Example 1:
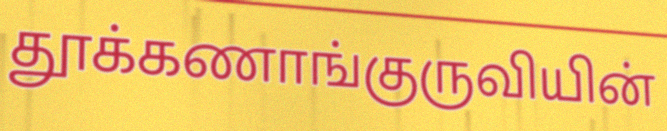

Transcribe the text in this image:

தூக்கணாங்குருவியின்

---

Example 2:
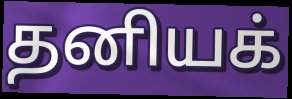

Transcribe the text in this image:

தனியக்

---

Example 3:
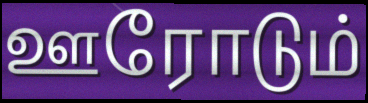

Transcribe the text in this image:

ஊரோடும்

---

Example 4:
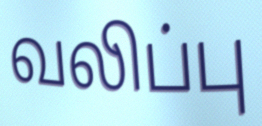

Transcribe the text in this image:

வலிப்பு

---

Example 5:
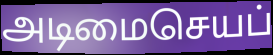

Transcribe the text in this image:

அடிமைசெயப்